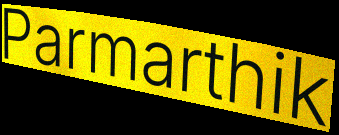
Parmarthik